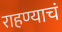
राहण्याचं